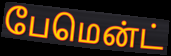
பேமென்ட்